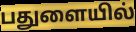
பதுளையில்